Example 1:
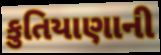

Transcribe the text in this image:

કુતિયાણાની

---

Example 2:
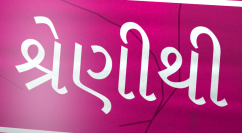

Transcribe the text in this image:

શ્રેણીથી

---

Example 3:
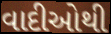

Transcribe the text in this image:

વાદીઓથી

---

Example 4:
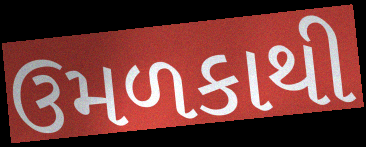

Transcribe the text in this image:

ઉમળકાથી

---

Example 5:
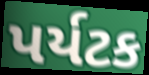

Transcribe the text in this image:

પર્યટક